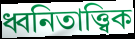
ধ্বনিতাত্ত্বিক